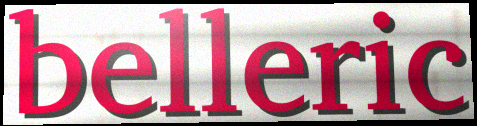
belleric